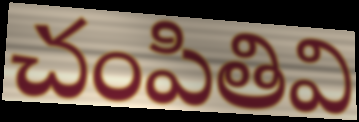
చంపితివి